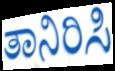
ತಾನಿರಿಸಿ